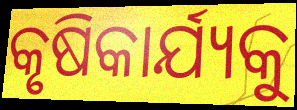
କୃଷିକାର୍ଯ୍ୟକୁ